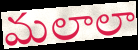
మలాలా